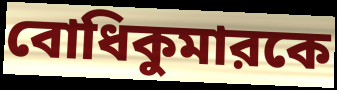
বোধিকুমারকে